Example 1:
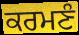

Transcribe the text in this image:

ਕਰਮਣੰ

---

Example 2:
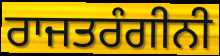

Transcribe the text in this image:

ਰਾਜਤਰੰਗੀਨੀ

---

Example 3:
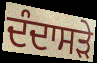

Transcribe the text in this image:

ਦੰਦਾਸੜੇ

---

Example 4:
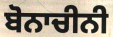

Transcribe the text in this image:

ਬੋਨਾਚੀਨੀ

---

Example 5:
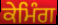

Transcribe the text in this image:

ਕੇਮਿੰਗ